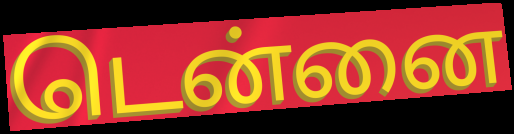
டென்னை